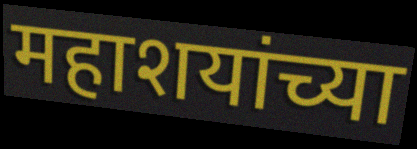
महाशयांच्या